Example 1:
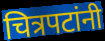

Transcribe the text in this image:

चित्रपटांनी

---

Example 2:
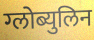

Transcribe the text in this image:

ग्लोब्युलिन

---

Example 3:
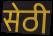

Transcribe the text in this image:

सेठी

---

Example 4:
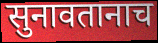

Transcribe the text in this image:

सुनावतानाच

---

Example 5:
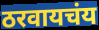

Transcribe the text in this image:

ठरवायचंय